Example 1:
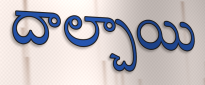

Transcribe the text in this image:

దాల్చాయి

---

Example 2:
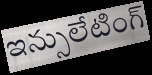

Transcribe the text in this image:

ఇన్సులేటింగ్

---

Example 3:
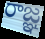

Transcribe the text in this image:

రాజ్ఞ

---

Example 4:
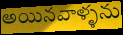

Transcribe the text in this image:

అయినవాళ్ళను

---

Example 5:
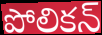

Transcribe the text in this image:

పోలికన్